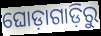
ଘୋଡ଼ାଗାଡ଼ିରୁ